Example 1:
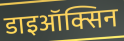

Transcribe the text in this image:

डाइऑक्सिन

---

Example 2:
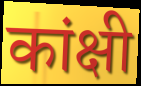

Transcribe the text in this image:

कांक्षी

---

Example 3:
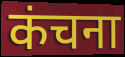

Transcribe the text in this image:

कंचना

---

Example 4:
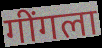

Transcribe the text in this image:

गींगला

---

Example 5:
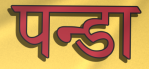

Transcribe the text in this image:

पन्डा